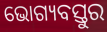
ଭୋଗ୍ୟବସ୍ତୁର